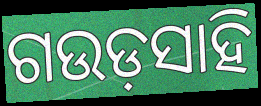
ଗଉଡ଼ସାହି